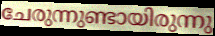
ചേരുന്നുണ്ടായിരുന്നു